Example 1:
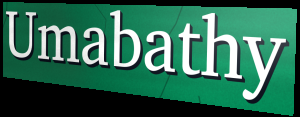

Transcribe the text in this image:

Umabathy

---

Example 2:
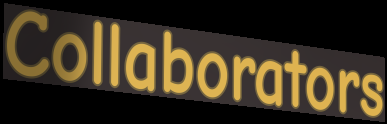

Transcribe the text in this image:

Collaborators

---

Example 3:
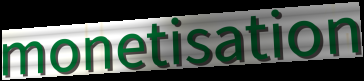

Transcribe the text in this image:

monetisation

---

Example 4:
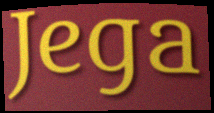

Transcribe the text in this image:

Jega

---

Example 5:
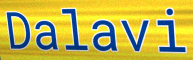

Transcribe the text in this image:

Dalavi